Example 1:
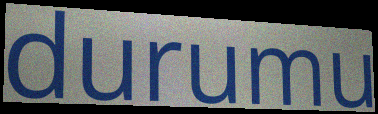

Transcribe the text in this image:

durumu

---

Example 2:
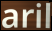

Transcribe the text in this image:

aril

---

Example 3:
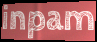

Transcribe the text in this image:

inpam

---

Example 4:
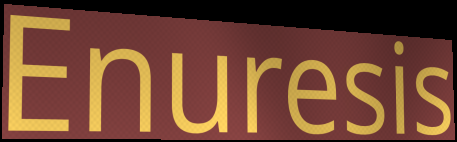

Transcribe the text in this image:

Enuresis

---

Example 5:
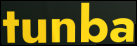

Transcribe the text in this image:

tunba